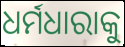
ଧର୍ମଧାରାକୁ